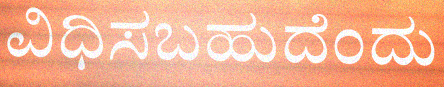
ವಿಧಿಸಬಹುದೆಂದು